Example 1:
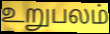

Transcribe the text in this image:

உறுபலம்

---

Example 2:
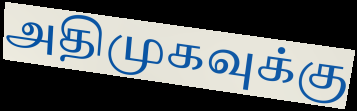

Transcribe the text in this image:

அதிமுகவுக்கு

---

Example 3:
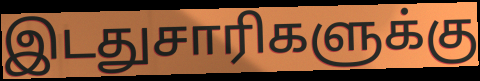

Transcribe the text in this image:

இடதுசாரிகளுக்கு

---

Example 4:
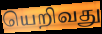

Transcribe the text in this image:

யெறிவது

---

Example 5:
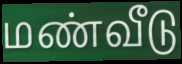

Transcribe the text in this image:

மண்வீடு